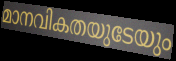
മാനവികതയുടേയും